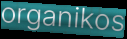
organikos